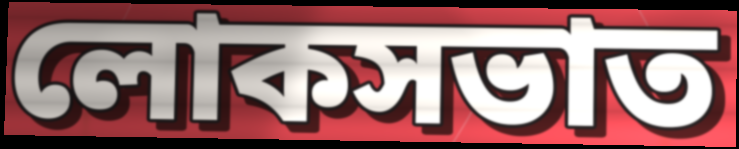
লোকসভাত